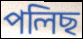
পলিছ